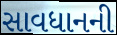
સાવધાનની